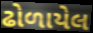
ઢોળાયેલ